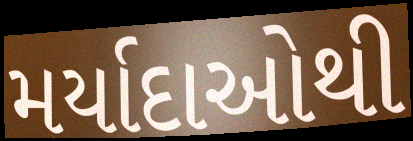
મર્યાદાઓથી